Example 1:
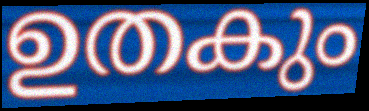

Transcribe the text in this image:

ഉതകും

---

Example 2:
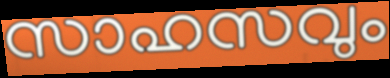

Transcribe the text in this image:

സാഹസവും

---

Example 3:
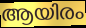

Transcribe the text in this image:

ആയിരം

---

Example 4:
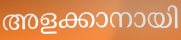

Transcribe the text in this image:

അളക്കാനായി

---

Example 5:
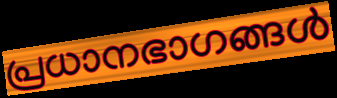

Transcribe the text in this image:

പ്രധാനഭാഗങ്ങൾ